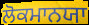
ਲੋਕਮਾਨਯਾ